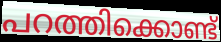
പറത്തിക്കൊണ്ട്